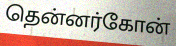
தென்னர்கோன்